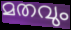
മതവും